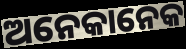
ଅନେକାନେକ